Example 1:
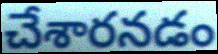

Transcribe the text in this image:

చేశారనడం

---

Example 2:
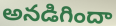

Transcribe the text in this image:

అనడిగిందా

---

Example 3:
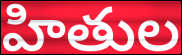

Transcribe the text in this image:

హితుల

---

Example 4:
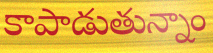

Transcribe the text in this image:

కాపాడుతున్నాం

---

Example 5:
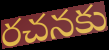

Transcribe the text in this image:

రచనకు